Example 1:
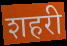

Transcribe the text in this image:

शहरी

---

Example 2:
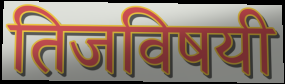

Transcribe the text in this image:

तिजविषयी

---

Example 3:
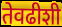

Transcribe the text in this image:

तेवढीशी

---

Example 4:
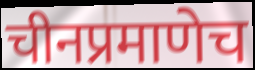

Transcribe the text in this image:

चीनप्रमाणेच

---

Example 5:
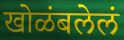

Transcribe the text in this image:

खोळंबलेलं